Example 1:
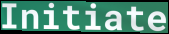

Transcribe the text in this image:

Initiate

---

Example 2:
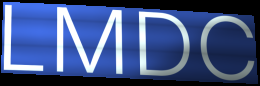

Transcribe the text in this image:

LMDC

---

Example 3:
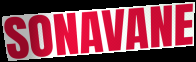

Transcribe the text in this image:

SONAVANE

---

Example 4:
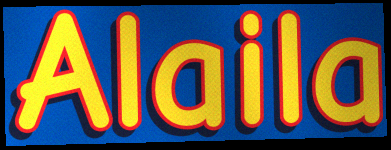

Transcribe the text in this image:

Alaila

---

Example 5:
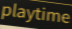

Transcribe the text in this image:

playtime